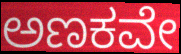
ಅಣಕವೇ